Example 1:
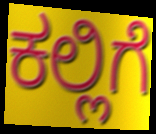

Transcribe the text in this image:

ಕಲ್ಲಿಗೆ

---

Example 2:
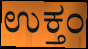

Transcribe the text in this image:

ಉಕ್ತಂ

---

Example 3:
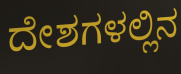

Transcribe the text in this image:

ದೇಶಗಳಲ್ಲಿನ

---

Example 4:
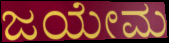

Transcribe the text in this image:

ಜಯೇಮ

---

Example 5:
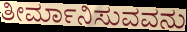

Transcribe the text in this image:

ತೀರ್ಮಾನಿಸುವವನು